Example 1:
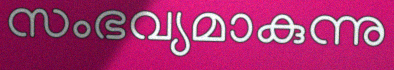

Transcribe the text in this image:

സംഭവ്യമാകുന്നു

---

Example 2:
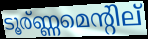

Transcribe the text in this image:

ടൂര്ണ്ണമെന്റില്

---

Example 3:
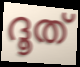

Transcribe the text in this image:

ദൂത്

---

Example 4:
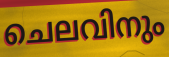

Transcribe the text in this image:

ചെലവിനും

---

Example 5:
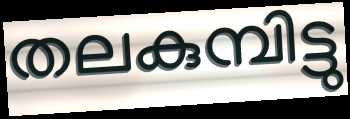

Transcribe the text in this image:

തലകുമ്പിട്ടു